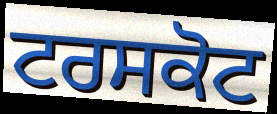
ਟਰਸਕੋਟ